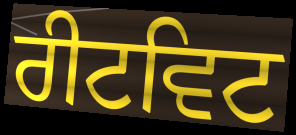
ਰੀਟਵਿਟ